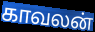
காவலன்